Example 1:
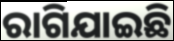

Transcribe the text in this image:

ରାଗିଯାଇଛି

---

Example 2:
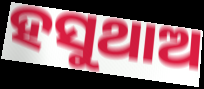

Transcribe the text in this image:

ହସୁଥାଅ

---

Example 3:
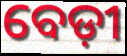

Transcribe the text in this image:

ବେଡ଼ୀ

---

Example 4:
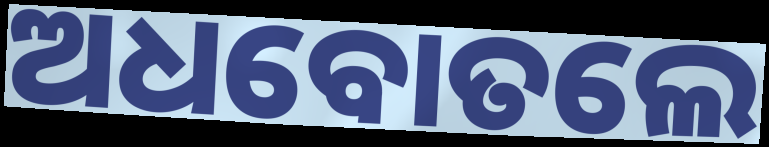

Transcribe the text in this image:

ଅଧବୋତଲେ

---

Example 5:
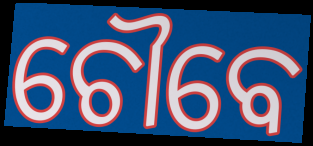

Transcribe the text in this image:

ଚୌବେ